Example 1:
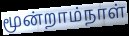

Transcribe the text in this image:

மூன்றாம்நாள்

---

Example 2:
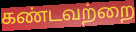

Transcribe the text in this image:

கண்டவற்றை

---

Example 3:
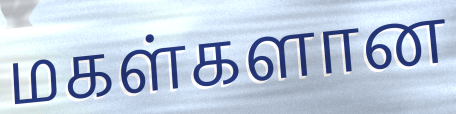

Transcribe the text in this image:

மகள்களான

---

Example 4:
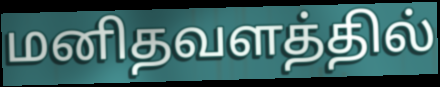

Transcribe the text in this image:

மனிதவளத்தில்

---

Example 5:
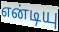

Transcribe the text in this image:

என்டியு